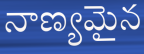
నాణ్యమైన